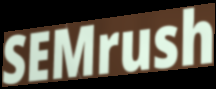
SEMrush